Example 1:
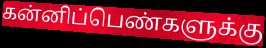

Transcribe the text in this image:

கன்னிப்பெண்களுக்கு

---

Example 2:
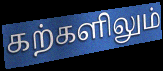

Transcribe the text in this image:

கற்களிலும்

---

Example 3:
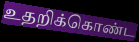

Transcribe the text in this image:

உதறிக்கொண்ட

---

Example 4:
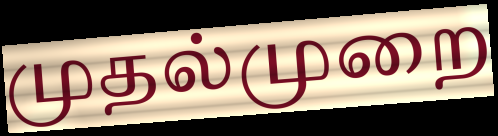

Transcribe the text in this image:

முதல்முறை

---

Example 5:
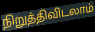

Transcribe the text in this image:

நிறுத்திவிடலாம்